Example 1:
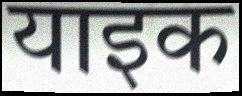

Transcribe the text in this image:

याइक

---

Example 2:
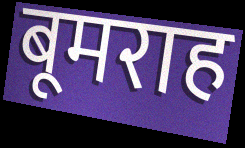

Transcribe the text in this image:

बूमराह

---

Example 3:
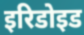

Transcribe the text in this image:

इरिडोइड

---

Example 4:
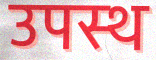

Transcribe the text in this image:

उपस्थ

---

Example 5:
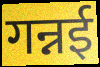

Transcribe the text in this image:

गन्नई